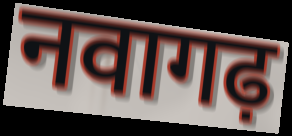
नवागढ़